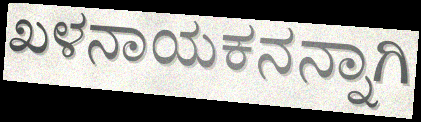
ಖಳನಾಯಕನನ್ನಾಗಿ